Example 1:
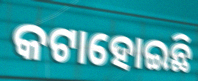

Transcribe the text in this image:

କଟାହୋଇଛି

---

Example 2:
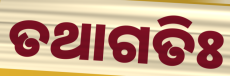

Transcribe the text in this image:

ତଥାଗତିଃ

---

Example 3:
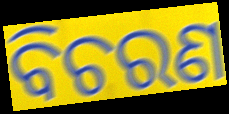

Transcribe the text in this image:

ବିଚରଣ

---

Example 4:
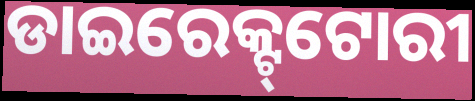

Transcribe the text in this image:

ଡାଇରେକ୍ଟ୍‌ଟୋରୀ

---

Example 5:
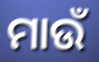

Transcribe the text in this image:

ମାଉଁ